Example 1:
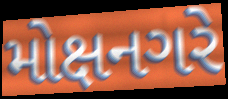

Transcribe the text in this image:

મોક્ષનગરે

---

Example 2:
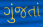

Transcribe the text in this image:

ગુંજતાં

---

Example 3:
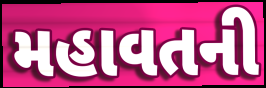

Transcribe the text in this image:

મહાવતની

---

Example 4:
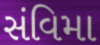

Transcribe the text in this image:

સંવિમા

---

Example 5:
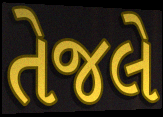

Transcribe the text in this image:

તેજલે